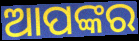
ଆପଙ୍କର